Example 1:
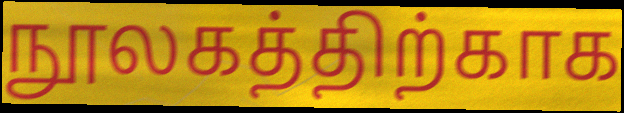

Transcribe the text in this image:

நூலகத்திற்காக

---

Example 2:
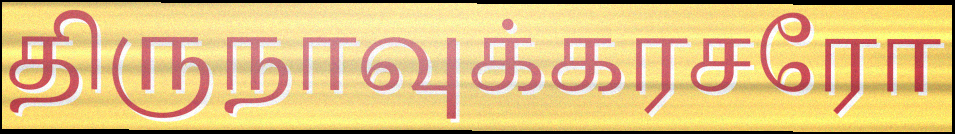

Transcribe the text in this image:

திருநாவுக்கரசரோ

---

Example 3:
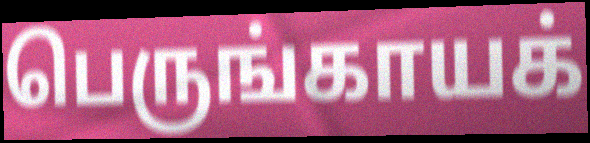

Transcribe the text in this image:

பெருங்காயக்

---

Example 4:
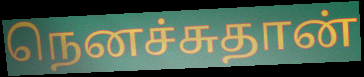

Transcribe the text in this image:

நெனச்சுதான்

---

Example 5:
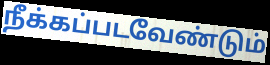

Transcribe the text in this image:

நீக்கப்படவேண்டும்